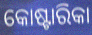
କୋଷ୍ଟାରିକା